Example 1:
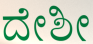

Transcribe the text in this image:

ದೇಶೀ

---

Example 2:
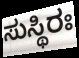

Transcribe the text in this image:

ಸುಸ್ಥಿರಃ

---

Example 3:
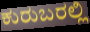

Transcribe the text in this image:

ಕುರುಬರಲ್ಲಿ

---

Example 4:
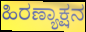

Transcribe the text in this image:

ಹಿರಣ್ಯಾಕ್ಷನ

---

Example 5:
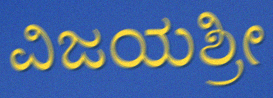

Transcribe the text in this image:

ವಿಜಯಶ್ರೀ